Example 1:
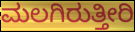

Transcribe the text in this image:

ಮಲಗಿರುತ್ತೀರಿ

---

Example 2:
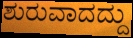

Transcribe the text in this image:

ಶುರುವಾದದ್ದು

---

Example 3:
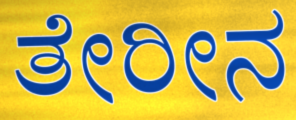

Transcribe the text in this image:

ತೇರೀನ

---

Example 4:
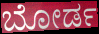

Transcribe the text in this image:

ಬೋರ್ಡ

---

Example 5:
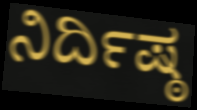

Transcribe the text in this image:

ನಿರ್ದಿಷ್ಠ